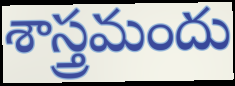
శాస్త్రమందు